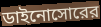
ডাইনোসোরের